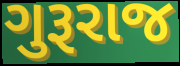
ગુરૂરાજ